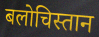
बलोचिस्तान